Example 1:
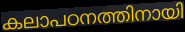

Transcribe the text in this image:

കലാപഠനത്തിനായി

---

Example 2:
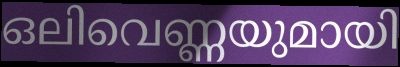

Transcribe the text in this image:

ഒലിവെണ്ണയുമായി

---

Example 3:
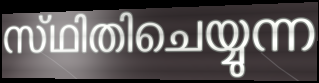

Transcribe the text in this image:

സ്‌ഥിതിചെയ്യുന്ന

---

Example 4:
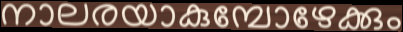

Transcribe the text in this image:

നാലരയാകുമ്പോഴേക്കും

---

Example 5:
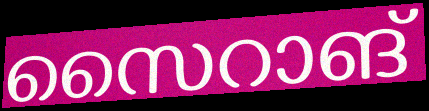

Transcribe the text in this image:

സൈറാങ്